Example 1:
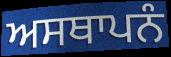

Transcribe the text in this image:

ਅਸਥਾਪਨੰ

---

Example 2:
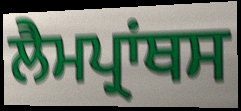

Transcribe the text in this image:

ਲੈਮਪ੍ਰਾਂਥਸ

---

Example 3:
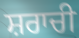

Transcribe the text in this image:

ਸ਼ਰਾਚੀ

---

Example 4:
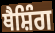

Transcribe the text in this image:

ਥੈਸ਼ਿੰਗ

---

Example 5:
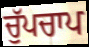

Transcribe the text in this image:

ਚੁੱਪਚਾਪ